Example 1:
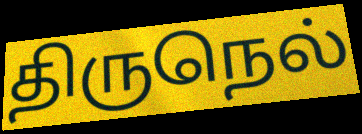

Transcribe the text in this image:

திருநெல்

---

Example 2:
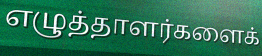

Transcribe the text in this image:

எழுத்தாளர்களைக்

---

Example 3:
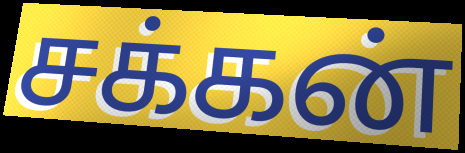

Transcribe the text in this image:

சக்கன்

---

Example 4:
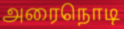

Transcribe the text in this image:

அரைநொடி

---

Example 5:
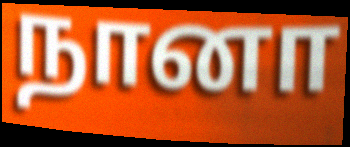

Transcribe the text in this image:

நானா